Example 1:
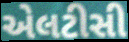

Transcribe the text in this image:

એલટીસી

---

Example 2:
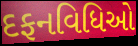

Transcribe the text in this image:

દફનવિધિઓ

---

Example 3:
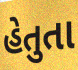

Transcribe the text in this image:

હેતુતા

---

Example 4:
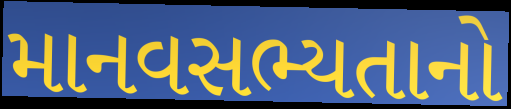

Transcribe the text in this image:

માનવસભ્યતાનો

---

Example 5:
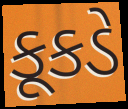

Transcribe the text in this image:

કૂકડે